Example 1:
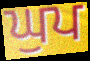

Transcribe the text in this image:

ਘੁਪ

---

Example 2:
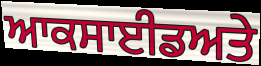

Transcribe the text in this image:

ਆਕਸਾਈਡਅਤੇ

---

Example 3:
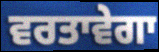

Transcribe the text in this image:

ਵਰਤਾਵੇਗਾ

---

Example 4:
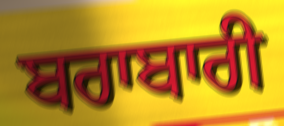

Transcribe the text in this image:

ਬਰਾਬਾਰੀ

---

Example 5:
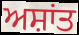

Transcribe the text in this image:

ਅਸ਼ਾਂਤ